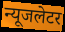
न्यूजलेटर